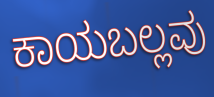
ಕಾಯಬಲ್ಲವು